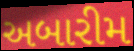
અબારીમ